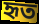
হৃত